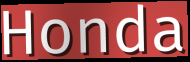
Honda